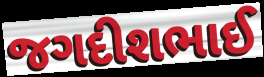
જગદીશભાઈ